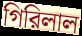
গিরিলাল